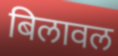
बिलावल